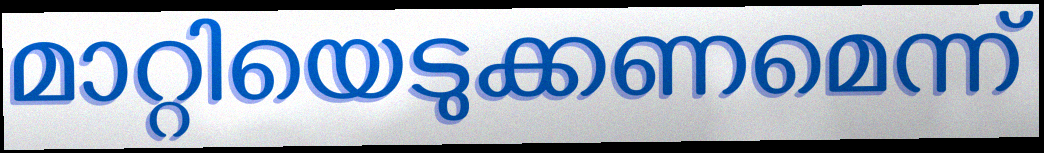
മാറ്റിയെടുക്കണമെന്ന്